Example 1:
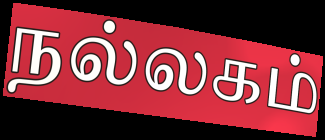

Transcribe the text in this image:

நல்லகம்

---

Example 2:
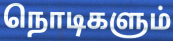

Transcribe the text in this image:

நொடிகளும்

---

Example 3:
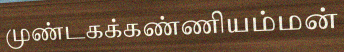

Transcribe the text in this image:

முண்டகக்கண்ணியம்மன்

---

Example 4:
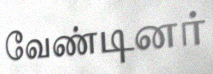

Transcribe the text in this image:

வேண்டினர்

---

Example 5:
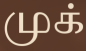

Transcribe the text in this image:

முக்